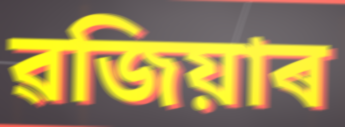
ৱজিয়াৰ